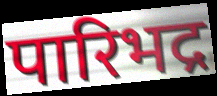
पारिभद्र